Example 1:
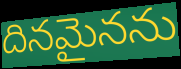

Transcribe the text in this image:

దినమైనను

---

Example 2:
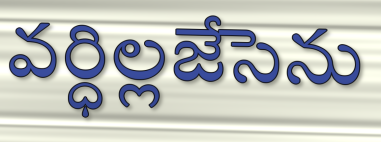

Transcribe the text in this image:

వర్ధిల్లజేసెను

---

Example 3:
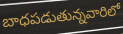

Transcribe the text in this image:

బాధపడుతున్నవారిలో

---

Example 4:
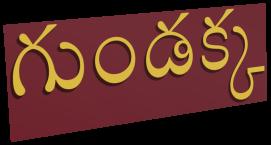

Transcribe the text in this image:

గుండక్క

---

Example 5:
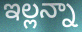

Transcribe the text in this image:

ఇల్లన్నా